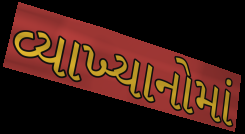
વ્યાખ્યાનોમાં